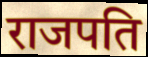
राजपति